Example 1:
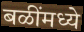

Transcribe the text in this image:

बळींमध्ये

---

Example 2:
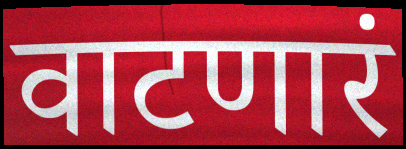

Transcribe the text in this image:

वाटणारं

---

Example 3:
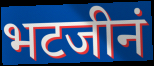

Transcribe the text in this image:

भटजीनं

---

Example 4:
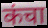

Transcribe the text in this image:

कंचा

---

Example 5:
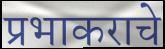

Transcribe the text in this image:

प्रभाकराचे